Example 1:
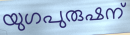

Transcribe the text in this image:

യുഗപുരുഷന്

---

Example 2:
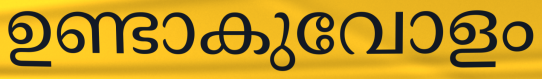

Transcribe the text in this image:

ഉണ്ടാകുവോളം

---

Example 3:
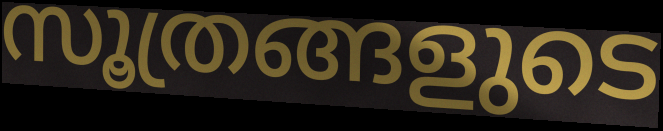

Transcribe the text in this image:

സൂത്രങ്ങളുടെ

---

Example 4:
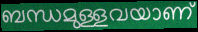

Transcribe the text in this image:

ബന്ധമുള്ളവയാണ്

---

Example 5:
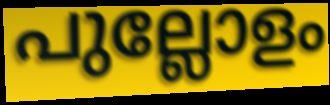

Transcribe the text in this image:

പുല്ലോളം